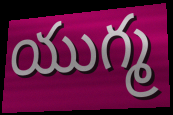
యుగ్మ